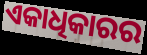
ଏକାଧିକାରର